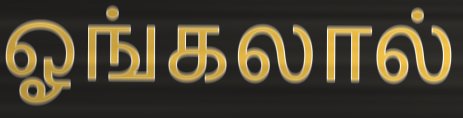
ஓங்கலால்